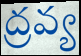
ద్రవ్య